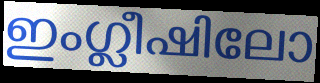
ഇംഗ്ലീഷിലോ